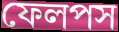
ফেলপস